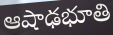
ఆషాఢభూతి